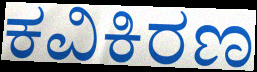
ಕವಿಕಿರಣ